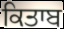
ਕਿਤਾਬ